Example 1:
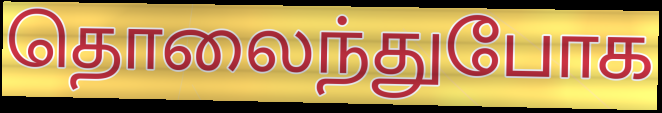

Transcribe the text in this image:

தொலைந்துபோக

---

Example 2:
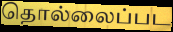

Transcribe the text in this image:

தொல்லைப்பட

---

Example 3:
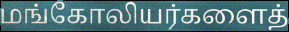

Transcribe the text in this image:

மங்கோலியர்களைத்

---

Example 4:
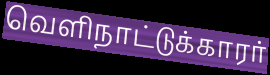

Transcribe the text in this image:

வெளிநாட்டுக்காரர்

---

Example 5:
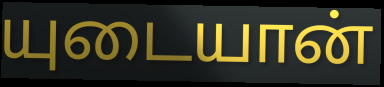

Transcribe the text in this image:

யுடையான்